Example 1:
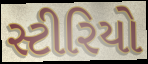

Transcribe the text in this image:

સ્ટીરિયો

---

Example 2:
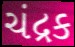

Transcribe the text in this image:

ચંદ્રક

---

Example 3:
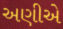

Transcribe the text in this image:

અણીએ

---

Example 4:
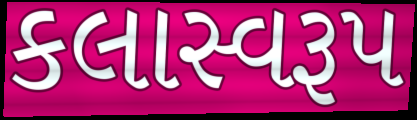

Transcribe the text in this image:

કલાસ્વરૂપ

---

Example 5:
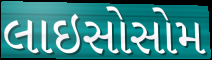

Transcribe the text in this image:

લાઇસોસોમ